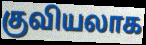
குவியலாக